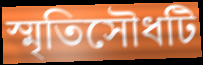
স্মৃতিসৌধটি